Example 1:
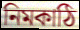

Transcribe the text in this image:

নিমকাঠি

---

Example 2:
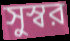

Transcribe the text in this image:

সুস্বর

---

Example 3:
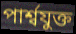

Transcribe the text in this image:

পার্শ্বযুক্ত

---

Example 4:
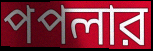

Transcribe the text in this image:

পপলার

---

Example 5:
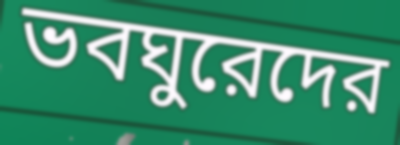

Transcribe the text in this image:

ভবঘুরেদের